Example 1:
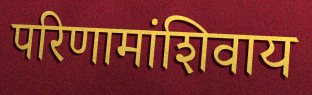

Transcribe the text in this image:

परिणामांशिवाय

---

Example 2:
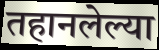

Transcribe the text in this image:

तहानलेल्या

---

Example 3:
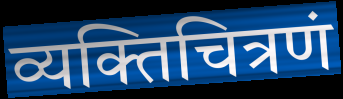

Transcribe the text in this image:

व्यक्तिचित्रणं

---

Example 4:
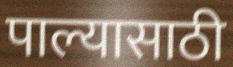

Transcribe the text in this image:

पाल्यासाठी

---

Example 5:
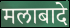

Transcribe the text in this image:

मलाबादे